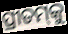
ପ୍ରୀତମ୍‌କୁ